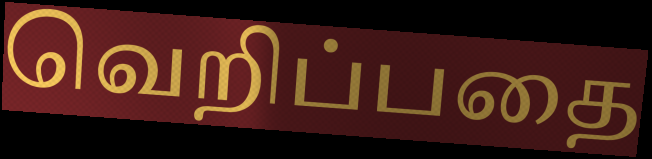
வெறிப்பதை